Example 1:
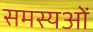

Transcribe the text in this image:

समस्यओं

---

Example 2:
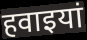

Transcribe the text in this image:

हवाइयां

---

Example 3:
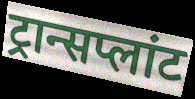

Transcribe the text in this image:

ट्रान्सप्लांट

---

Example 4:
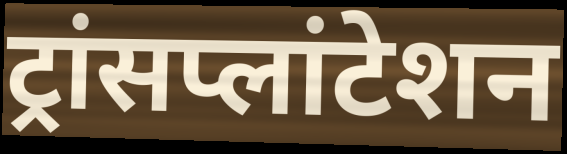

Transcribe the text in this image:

ट्रांसप्लांटेशन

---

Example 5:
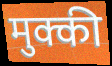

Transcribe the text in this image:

मुक्की